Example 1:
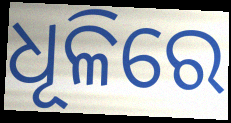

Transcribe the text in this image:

ଧୂଳିରେ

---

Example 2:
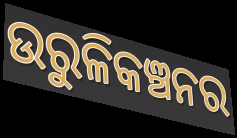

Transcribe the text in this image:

ଉରୁଳିକଞ୍ଚନର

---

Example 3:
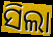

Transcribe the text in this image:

ସିଲା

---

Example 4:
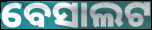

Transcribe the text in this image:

ବେସାଲଟ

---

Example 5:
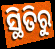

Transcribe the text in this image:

ସ୍ଥିତିରୁ